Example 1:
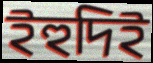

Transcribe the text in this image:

ইহুদিই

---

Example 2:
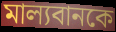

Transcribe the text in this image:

মাল্যবানকে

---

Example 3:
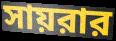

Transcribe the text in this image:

সায়রার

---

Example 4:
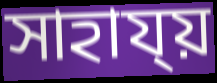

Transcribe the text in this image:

সাহায্য়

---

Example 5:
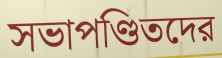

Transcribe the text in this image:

সভাপণ্ডিতদের